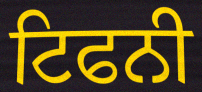
ਟਿਫਨੀ